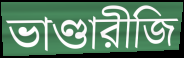
ভাণ্ডারীজি